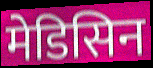
मेडिसिन